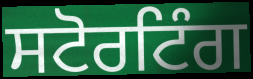
ਸਟੋਰਟਿੰਗ